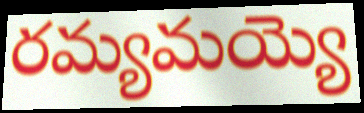
రమ్యమయ్యె